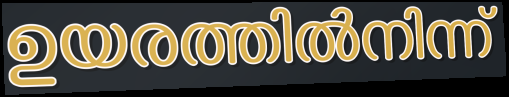
ഉയരത്തിൽനിന്ന്